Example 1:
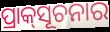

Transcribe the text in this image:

ପ୍ରାକ୍‌ସୂଚନାର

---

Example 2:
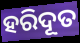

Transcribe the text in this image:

ହରିଦୂତ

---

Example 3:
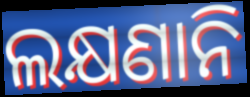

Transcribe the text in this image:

ଲକ୍ଷଣାନି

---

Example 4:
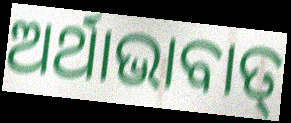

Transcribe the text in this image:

ଅର୍ଥାଭାବାତ୍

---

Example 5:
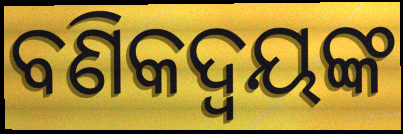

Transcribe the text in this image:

ବଣିକଦ୍ଵୟଙ୍କ